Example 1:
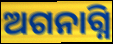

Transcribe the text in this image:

ଅଗନାଗ୍ନି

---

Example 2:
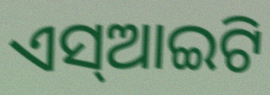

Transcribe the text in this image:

ଏସ୍ଆଇଟି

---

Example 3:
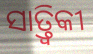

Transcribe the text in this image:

ସାତ୍ତ୍ୱିକୀ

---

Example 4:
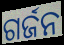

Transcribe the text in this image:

ଗର୍ଜନ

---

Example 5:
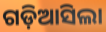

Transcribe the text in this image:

ଗଡ଼ିଆସିଲା